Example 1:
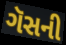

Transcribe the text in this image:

ગૅસની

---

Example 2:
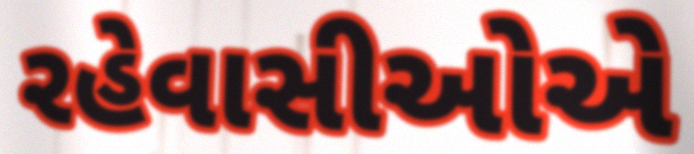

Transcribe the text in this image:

રહેવાસીઓએ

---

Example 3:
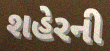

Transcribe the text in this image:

શહેરની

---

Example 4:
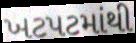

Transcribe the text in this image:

ખટપટમાંથી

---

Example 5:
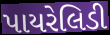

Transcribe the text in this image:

પાયરેલિડી